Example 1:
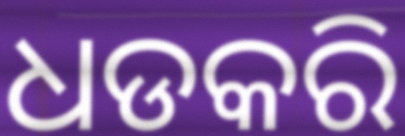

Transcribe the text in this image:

ଧଡକରି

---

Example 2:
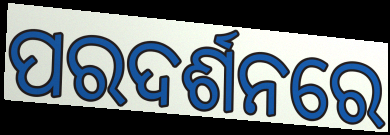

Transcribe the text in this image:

ପରଦର୍ଶନରେ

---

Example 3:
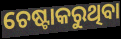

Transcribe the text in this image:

ଚେଷ୍ଟାକରୁଥିବା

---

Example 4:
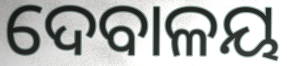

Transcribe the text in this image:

ଦେବାଳୟ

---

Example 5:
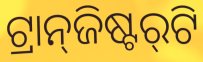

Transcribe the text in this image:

ଟ୍ରାନ୍‌ଜିଷ୍ଟର୍‌ଟି